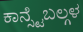
ಕಾನ್ಸ್ಟೆಬಲ್ಗಳ